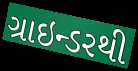
ગ્રાઇન્ડરથી